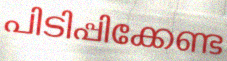
പിടിപ്പിക്കേണ്ട